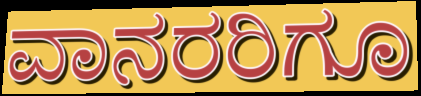
ವಾನರರಿಗೂ